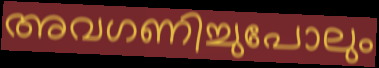
അവഗണിച്ചുപോലും